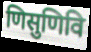
णिसुणिवि